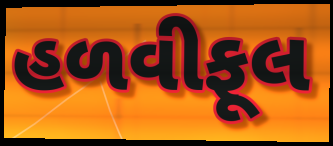
હળવીફૂલ